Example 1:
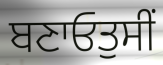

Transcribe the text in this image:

ਬਣਾਓਤੁਸੀਂ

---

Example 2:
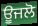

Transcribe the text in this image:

ਊਜਲੋ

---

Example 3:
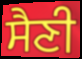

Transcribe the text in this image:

ਸੈਣੀ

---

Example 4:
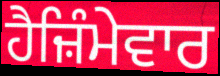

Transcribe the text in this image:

ਹੈਜ਼ਿੰਮੇਵਾਰ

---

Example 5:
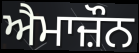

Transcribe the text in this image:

ਐਮਾਜ਼ੌਨ